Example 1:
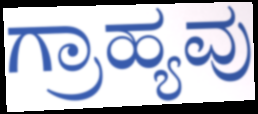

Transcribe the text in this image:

ಗ್ರಾಹ್ಯವು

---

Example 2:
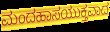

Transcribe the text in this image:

ಮಂದಹಾಸಯುಕ್ತವಾದ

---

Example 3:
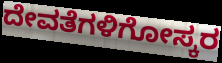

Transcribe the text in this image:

ದೇವತೆಗಳಿಗೋಸ್ಕರ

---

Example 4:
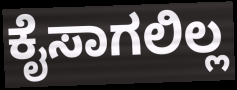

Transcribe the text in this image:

ಕೈಸಾಗಲಿಲ್ಲ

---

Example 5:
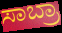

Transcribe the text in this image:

ಸಾಬ್ರಾ